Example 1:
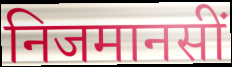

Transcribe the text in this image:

निजमानसीं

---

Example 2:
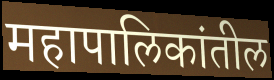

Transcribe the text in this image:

महापालिकांतील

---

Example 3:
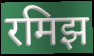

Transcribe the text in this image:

रमिझ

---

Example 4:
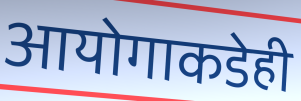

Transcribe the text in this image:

आयोगाकडेही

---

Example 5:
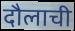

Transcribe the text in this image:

दौलाची